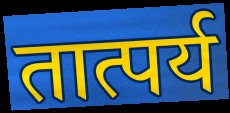
तात्पर्य